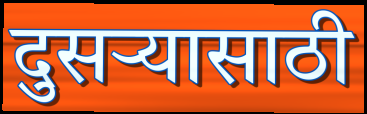
दुसऱ्यासाठी